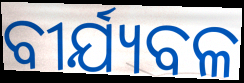
ବୀର୍ଯ୍ୟବଳ